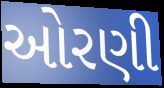
ઓરણી